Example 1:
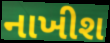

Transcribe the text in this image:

નાખીશ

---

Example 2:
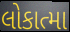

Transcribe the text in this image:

લોકાત્મા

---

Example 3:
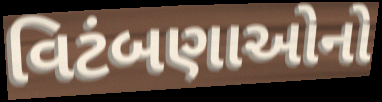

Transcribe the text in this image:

વિટંબણાઓનો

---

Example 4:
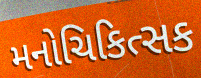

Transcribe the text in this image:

મનોચિકિત્સક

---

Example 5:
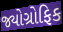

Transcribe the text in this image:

જ્યોગ્રોફિક